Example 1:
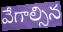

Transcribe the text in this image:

వేగాల్సిన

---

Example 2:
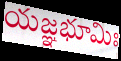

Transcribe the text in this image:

యజ్ఞభూమిః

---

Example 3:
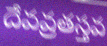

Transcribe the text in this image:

దేవవ్రతస్తవ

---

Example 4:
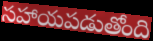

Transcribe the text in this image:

సహాయపడుతోంది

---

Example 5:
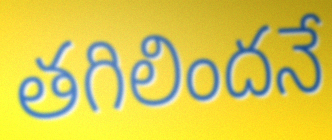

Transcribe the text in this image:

తగిలిందనే